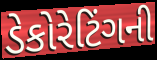
ડેકોરેટિંગની